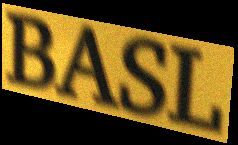
BASL